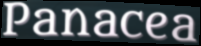
Panacea